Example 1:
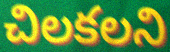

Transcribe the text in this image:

చిలకలని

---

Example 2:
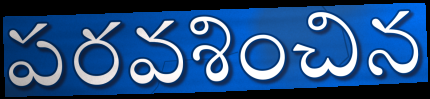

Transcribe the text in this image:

పరవశించిన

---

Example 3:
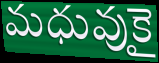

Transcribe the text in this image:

మధువుకై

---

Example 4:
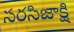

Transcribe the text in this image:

సరసిజాక్షి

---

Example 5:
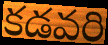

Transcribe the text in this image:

కడవరి